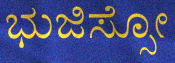
ಭುಜಿಸ್ಸೋ